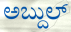
ಅಬ್ದುಲ್